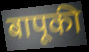
बापूकी